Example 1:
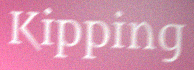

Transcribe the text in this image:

Kipping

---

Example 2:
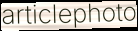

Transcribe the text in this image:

articlephoto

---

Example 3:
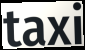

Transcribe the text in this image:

taxi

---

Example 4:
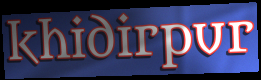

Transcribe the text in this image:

khidirpur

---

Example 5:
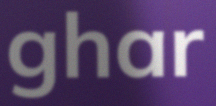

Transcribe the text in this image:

ghar